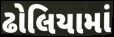
ઢોલિયામાં